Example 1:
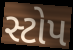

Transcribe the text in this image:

સ્ટોપ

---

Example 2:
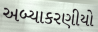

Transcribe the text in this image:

અબ્યાકરણીયો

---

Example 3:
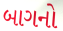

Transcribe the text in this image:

બાગનો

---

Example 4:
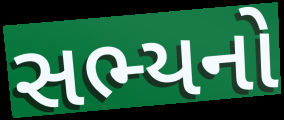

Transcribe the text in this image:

સભ્યનો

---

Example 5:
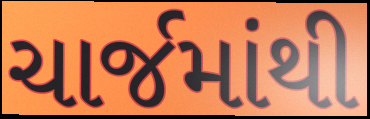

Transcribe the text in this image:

ચાર્જમાંથી